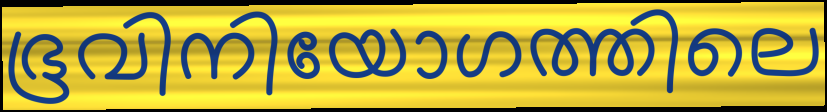
ഭൂവിനിയോഗത്തിലെ